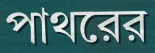
পাথরের